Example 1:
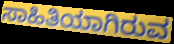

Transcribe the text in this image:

ಸಾಹಿತಿಯಾಗಿರುವ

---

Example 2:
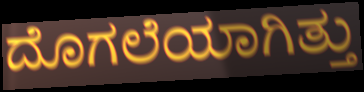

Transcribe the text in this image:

ದೊಗಲೆಯಾಗಿತ್ತು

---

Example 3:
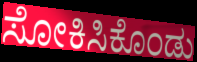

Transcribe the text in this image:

ಸೋಕಿಸಿಕೊಂಡು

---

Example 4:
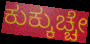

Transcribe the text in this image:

ಕುಕ್ಕುಚ್ಚೇ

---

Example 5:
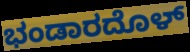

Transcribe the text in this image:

ಭಂಡಾರದೊಳ್